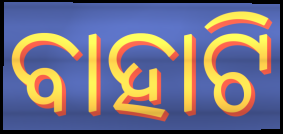
ବାହାଟି